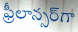
ఫ్రీలాన్సర్‌గా